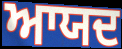
ਆਯਦ